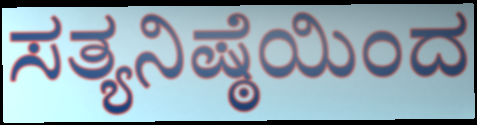
ಸತ್ಯನಿಷ್ಠೆಯಿಂದ